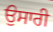
ਉਸਾਰੀ